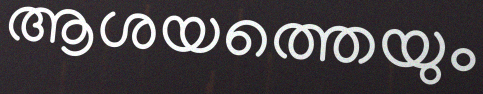
ആശയത്തെയും